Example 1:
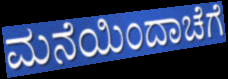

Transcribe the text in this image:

ಮನೆಯಿಂದಾಚೆಗೆ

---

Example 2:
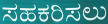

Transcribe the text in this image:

ಸಹಕರಿಸಲು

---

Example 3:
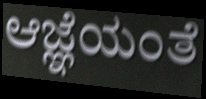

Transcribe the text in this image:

ಆಜ್ಞೆಯಂತೆ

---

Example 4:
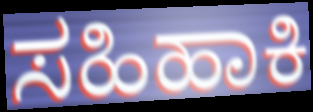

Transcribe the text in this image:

ಸಹಿಹಾಕಿ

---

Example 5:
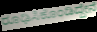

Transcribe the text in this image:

ರೂಢಿಸಿಕೊಂಡಿದ್ದೇನೆ